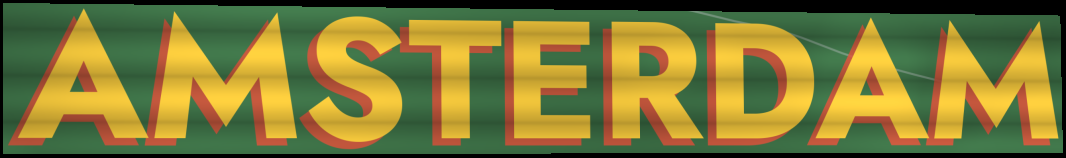
AMSTERDAM